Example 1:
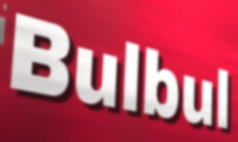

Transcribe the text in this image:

Bulbul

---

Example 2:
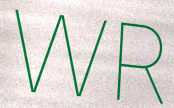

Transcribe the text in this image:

WR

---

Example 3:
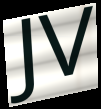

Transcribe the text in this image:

JV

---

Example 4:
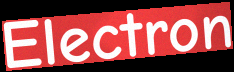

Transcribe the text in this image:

Electron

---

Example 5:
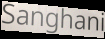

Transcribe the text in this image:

Sanghani